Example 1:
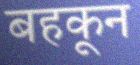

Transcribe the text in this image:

बहकून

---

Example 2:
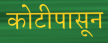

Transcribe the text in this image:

कोटीपासून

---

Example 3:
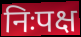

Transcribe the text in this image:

निःपक्ष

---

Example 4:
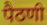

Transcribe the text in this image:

पैठणी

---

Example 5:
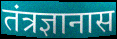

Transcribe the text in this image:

तंत्रज्ञानास